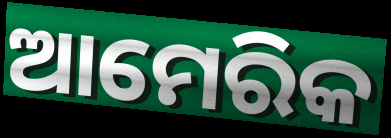
ଆମେରିକ